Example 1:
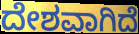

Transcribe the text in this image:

ದೇಶವಾಗಿದೆ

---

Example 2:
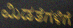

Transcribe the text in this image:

ಮಿಡತೆಗಳಿಗೆ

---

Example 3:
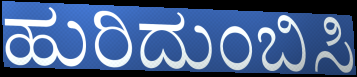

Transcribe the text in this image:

ಹುರಿದುಂಬಿಸಿ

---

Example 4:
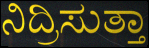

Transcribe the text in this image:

ನಿದ್ರಿಸುತ್ತಾ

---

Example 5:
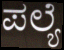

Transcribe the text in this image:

ಪಲ್ಯೆ